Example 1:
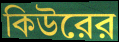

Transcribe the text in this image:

কিউরের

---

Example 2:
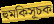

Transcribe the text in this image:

হুমকিসূচক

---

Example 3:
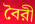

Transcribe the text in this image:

বৈরী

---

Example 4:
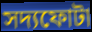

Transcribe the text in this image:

সদ্যফোটা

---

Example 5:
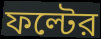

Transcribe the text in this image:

ফল্টের